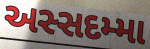
અસ્સદમ્મા